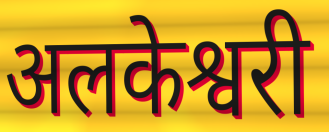
अलकेश्वरी